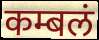
कम्बलं